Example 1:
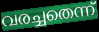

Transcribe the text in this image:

വരച്ചതെന്ന്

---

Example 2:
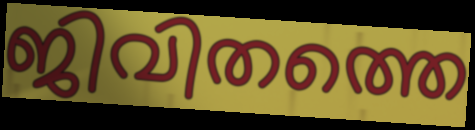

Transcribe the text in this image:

ജിവിതത്തെ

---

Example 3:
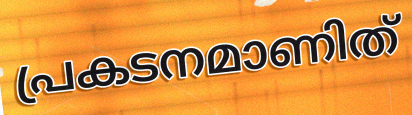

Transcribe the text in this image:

പ്രകടനമാണിത്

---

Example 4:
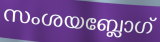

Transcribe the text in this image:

സംശയബ്ലോഗ്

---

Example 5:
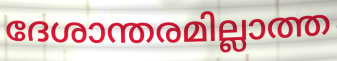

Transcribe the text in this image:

ദേശാന്തരമില്ലാത്ത